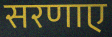
सरणाए